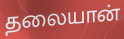
தலையான்